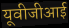
यूवीजीआई